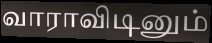
வாராவிடினும்